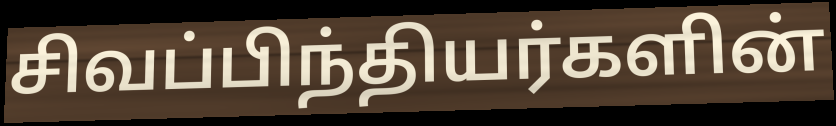
சிவப்பிந்தியர்களின்